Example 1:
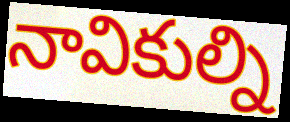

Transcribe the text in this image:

నావికుల్ని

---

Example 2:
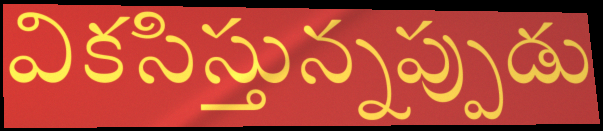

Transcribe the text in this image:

వికసిస్తున్నప్పుడు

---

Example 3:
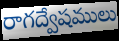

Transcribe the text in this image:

రాగద్వేషములు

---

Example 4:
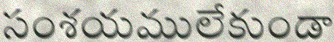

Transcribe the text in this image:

సంశయములేకుండా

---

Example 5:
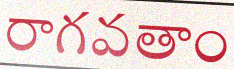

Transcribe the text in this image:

రాగవతాం